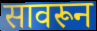
सावरून